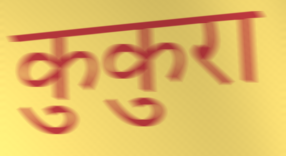
कुकुरा